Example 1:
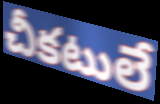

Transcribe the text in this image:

చీకటులే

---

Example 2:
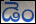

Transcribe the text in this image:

డెం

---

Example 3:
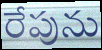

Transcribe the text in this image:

రేపును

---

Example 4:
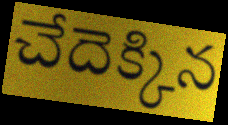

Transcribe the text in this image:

చేదెక్కిన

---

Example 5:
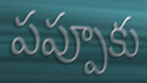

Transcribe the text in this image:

పప్పూకు